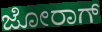
ಜೋರಾಗ್